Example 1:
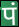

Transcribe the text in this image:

पं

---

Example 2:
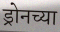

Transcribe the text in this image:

ड्रोनच्या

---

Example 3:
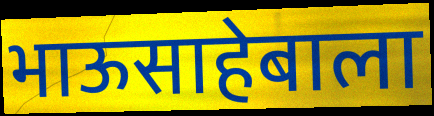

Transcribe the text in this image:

भाऊसाहेबाला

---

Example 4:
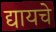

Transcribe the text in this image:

द्यायचे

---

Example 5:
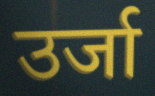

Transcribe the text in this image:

उर्जा